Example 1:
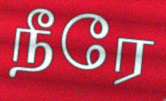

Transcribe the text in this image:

நீரே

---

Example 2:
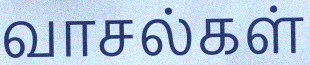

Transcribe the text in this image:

வாசல்கள்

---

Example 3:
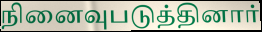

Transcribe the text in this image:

நினைவுபடுத்தினார்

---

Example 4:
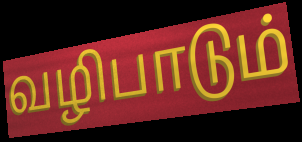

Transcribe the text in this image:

வழிபாடும்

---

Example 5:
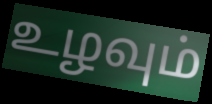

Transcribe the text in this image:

உழவும்